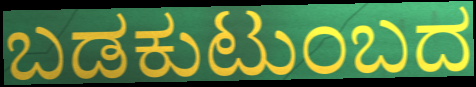
ಬಡಕುಟುಂಬದ